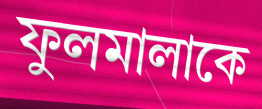
ফুলমালাকে